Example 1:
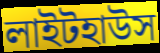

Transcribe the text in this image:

লাইটহাউস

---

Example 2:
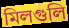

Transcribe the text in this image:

মিলগুলি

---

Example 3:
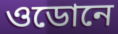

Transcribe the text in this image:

ওডোনে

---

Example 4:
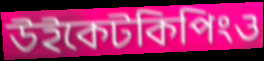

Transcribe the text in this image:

উইকেটকিপিংও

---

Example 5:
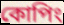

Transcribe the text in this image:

কোপিং